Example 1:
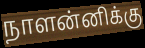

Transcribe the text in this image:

நாளன்னிக்கு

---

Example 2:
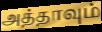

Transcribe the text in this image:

அத்தாவும்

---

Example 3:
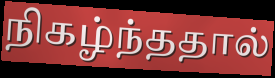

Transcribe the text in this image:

நிகழ்ந்ததால்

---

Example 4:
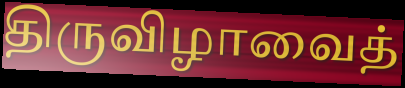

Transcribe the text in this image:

திருவிழாவைத்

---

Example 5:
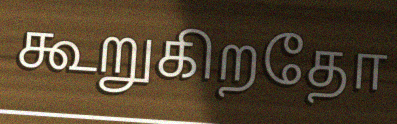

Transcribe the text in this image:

கூறுகிறதோ